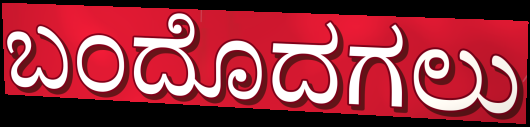
ಬಂದೊದಗಲು